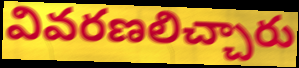
వివరణలిచ్చారు